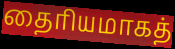
தைரியமாகத்